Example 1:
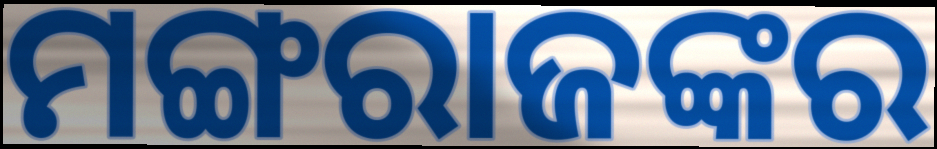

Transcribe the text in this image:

ମଙ୍ଗରାଜଙ୍କର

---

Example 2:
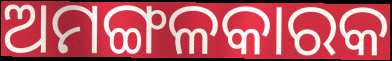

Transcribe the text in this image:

ଅମଙ୍ଗଳକାରକ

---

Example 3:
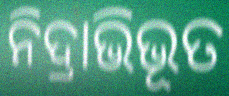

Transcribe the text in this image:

ନିଦ୍ରାଭିଭୂତ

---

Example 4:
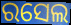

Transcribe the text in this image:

ରସେଲ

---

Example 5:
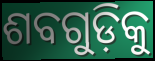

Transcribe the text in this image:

ଶବଗୁଡ଼ିକୁ